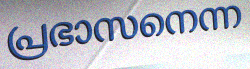
പ്രഭാസനെന്ന